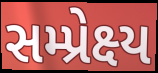
સમ્પ્રેક્ષ્ય